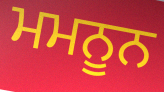
ਮਮਨੂਨ